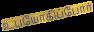
உபயோகிப்போர்